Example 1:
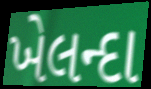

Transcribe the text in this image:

ખેલન્દા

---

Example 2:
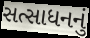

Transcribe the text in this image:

સત્સાધનનું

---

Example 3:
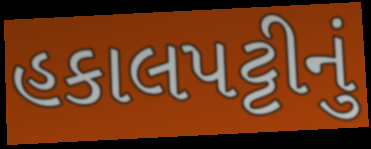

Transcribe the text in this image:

હકાલપટ્ટીનું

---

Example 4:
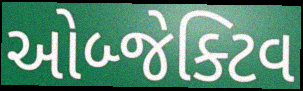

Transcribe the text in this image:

ઓબ્જેક્ટિવ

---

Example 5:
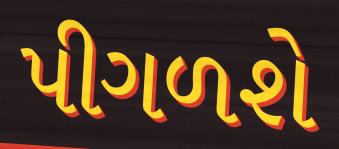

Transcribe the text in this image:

પીગળશે